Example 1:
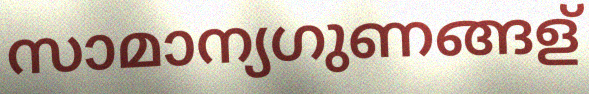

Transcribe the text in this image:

സാമാന്യഗുണങ്ങള്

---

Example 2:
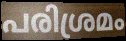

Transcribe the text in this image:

പരിശ്രമം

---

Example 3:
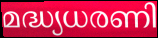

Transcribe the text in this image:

മദ്ധ്യധരണി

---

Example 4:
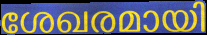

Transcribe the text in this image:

ശേഖരമായി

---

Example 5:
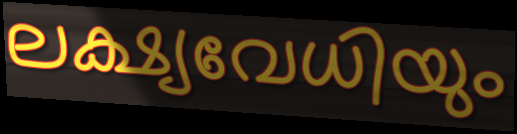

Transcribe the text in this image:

ലക്ഷ്യവേധിയും